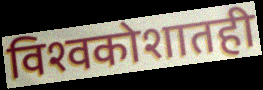
विश्वकोशातही